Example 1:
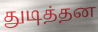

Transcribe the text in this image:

துடித்தன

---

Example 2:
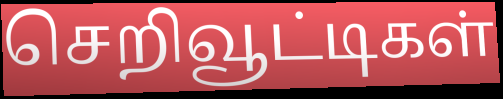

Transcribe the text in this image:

செறிவூட்டிகள்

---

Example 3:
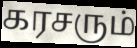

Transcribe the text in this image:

கரசரும்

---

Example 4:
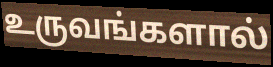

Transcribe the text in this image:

உருவங்களால்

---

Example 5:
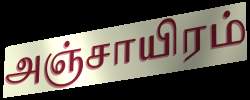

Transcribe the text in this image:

அஞ்சாயிரம்